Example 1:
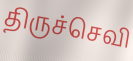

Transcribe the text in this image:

திருச்செவி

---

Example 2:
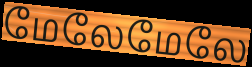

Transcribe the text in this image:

மேலேமேலே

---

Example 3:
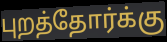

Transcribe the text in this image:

புறத்தோர்க்கு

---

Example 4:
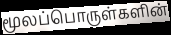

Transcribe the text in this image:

மூலப்பொருள்களின்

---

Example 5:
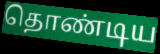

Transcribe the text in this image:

தொண்டிய